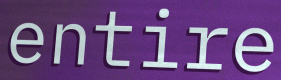
entire